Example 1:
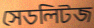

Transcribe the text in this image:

সেডলিটজ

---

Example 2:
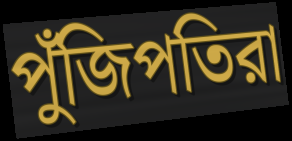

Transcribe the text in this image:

পুঁজিপতিরা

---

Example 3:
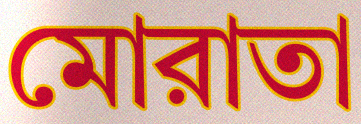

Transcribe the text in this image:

মোরাতা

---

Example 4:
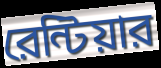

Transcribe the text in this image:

রেন্টিয়ার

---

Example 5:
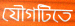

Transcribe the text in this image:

যৌগটিতে